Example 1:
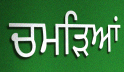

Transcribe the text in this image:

ਚਮੜਿਆਂ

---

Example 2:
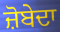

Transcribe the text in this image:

ਜ਼ੋਬੇਦਾ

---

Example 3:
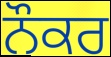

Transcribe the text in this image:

ਨੌਕਰ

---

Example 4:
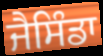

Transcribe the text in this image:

ਜੈਸਿੰਡਾ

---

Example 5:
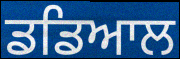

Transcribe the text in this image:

ਡਡਿਆਲ